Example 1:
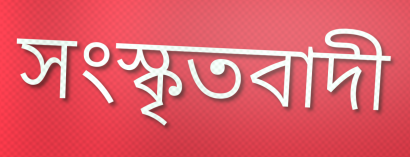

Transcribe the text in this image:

সংস্কৃতবাদী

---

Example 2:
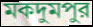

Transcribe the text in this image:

মকদুমপুর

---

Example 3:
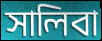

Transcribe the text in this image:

সালিবা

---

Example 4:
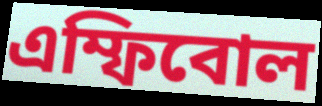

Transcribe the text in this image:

এম্ফিবোল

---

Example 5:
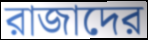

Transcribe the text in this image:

রাজাদের